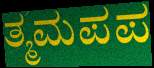
ತ್ಮಮಪಪ